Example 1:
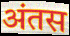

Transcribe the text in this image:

अंतस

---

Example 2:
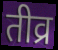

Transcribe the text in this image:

तीव्र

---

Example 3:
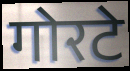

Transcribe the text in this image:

गोरटे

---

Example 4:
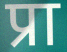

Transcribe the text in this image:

प्रा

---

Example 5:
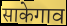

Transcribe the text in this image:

साकेगाव